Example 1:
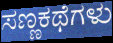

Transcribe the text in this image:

ಸಣ್ಣಕಥೆಗಳು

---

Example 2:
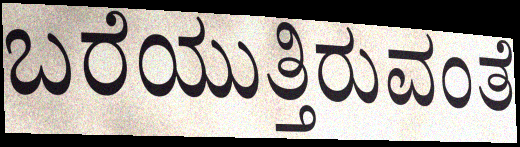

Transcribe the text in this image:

ಬರೆಯುತ್ತಿರುವಂತೆ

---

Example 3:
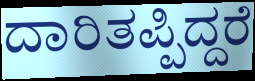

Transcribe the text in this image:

ದಾರಿತಪ್ಪಿದ್ದರೆ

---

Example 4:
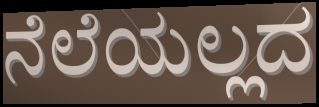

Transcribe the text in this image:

ನೆಲೆಯಲ್ಲದ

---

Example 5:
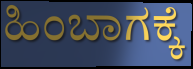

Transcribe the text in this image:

ಹಿಂಬಾಗಕ್ಕೆ